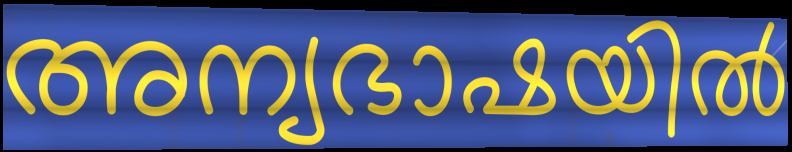
അന്യഭാഷയിൽ